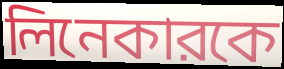
লিনেকারকে